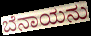
ಬೆನಾಯನು